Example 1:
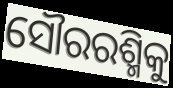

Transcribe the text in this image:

ସୌରରଶ୍ମିକୁ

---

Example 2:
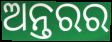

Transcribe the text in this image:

ଅନ୍ତରର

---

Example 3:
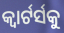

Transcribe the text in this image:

କ୍ୱାର୍ଟର୍ସକୁ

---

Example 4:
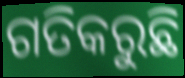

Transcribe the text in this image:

ଗତିକରୁଛି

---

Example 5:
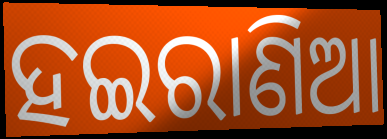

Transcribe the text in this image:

ହଇରାଣିଆ